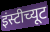
इंस्‍टीच्‍यूट